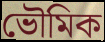
ভৌমিক